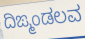
ದಿಙ್ಮಂಡಲವ